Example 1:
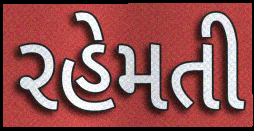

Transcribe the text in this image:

રહેમતી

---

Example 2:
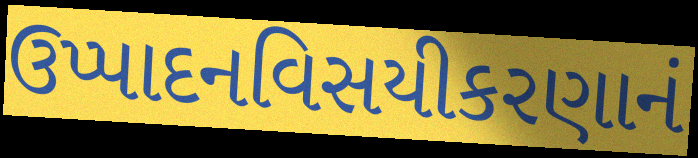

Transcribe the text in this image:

ઉપ્પાદનવિસયીકરણાનં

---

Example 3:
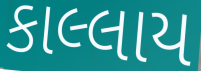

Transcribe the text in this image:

કાલ્લાય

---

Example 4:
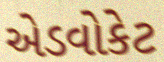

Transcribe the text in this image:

એડવોકેટ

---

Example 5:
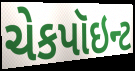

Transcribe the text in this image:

ચેકપૉઇન્ટ